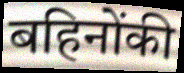
बहिनोंकी